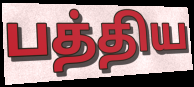
பத்திய